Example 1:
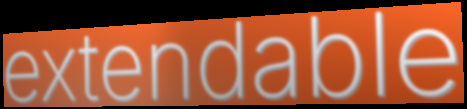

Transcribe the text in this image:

extendable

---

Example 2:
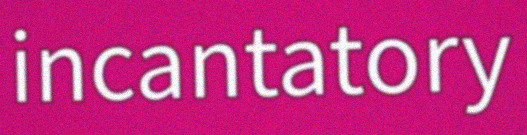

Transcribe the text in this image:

incantatory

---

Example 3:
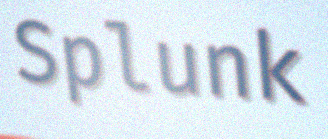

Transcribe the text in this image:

Splunk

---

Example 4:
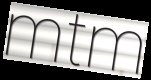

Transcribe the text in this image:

mtm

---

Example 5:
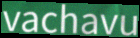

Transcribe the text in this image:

vachavu